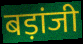
बड़ांजी